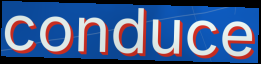
conduce